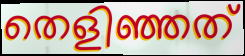
തെളിഞ്ഞത്